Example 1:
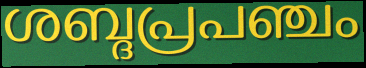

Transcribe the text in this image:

ശബ്ദപ്രപഞ്ചം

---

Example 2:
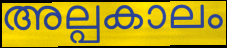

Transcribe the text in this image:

അല്പകാലം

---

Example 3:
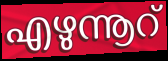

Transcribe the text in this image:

എഴുന്നൂറ്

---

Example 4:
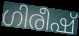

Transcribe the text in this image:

ഗിരീഷ്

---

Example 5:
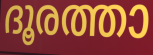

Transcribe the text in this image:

ദൂരത്താ